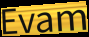
Evam